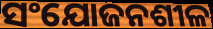
ସଂଯୋଜନଶୀଳ